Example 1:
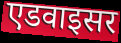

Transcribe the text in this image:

एडवाइसर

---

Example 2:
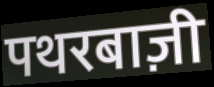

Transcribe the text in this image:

पथरबाज़ी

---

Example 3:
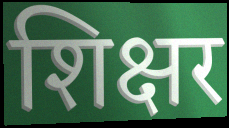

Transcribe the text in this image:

शिक्षर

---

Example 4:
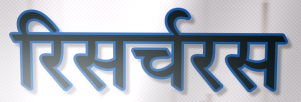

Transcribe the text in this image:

रिसर्चरस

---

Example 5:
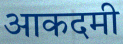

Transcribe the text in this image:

आकदमी